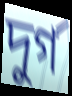
দুর্গ